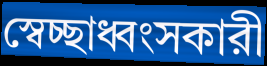
স্বেচ্ছাধ্বংসকারী